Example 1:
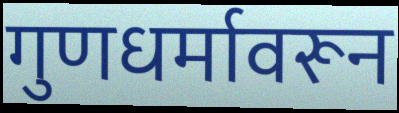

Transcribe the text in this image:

गुणधर्मावरून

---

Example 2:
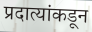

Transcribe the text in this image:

प्रदात्यांकडून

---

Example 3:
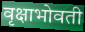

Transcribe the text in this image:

वृक्षाभोवती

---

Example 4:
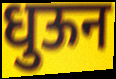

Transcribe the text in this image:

धुऊन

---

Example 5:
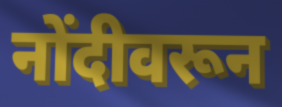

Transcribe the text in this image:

नोंदीवरून